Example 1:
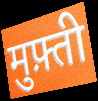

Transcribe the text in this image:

मुफ़्ती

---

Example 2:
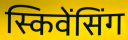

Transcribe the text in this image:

स्किवेंसिंग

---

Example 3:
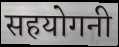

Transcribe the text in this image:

सहयोगनी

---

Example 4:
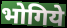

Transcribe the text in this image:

भोगिये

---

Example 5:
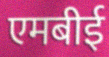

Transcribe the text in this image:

एमबीई